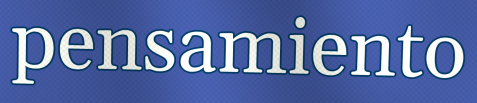
pensamiento